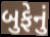
બુફેનું